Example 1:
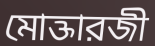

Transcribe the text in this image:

মোক্তারজী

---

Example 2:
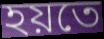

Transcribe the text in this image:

হয়তে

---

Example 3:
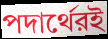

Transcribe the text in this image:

পদার্থেরই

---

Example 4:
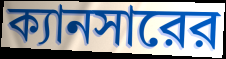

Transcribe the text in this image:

ক্যানসারের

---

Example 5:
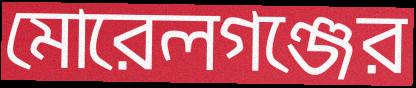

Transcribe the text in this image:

মোরেলগঞ্জের